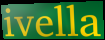
ivella